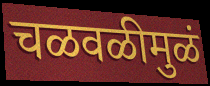
चळवळीमुळं